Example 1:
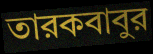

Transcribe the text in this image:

তারকবাবুর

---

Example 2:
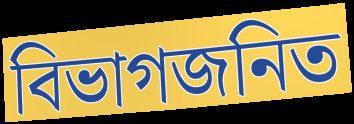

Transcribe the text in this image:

বিভাগজনিত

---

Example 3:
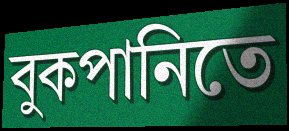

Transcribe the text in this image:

বুকপানিতে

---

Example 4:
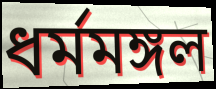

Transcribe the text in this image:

ধর্মমঙ্গল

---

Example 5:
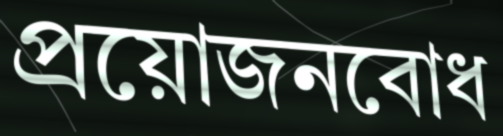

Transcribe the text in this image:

প্রয়োজনবোধ